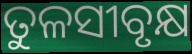
ତୁଳସୀବୃକ୍ଷ